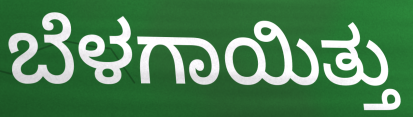
ಬೆಳಗಾಯಿತ್ತು